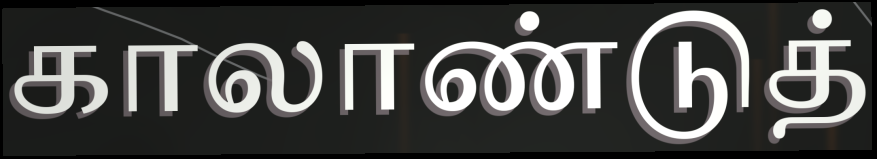
காலாண்டுத்